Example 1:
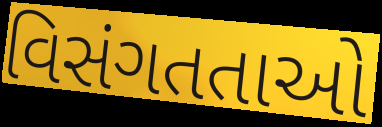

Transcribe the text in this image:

વિસંગતતાઓ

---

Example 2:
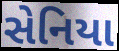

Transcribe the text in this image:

સેનિયા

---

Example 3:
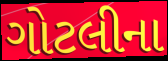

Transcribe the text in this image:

ગોટલીના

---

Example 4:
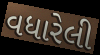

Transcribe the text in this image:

વધારેલી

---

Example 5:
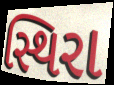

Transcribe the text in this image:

સ્થિરા